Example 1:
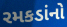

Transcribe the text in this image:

રમકડાંનો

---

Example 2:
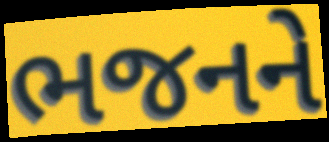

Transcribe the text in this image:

ભજનને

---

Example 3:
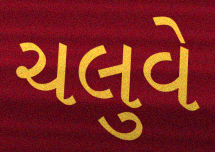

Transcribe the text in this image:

ચલુવે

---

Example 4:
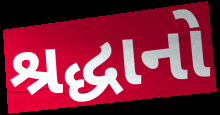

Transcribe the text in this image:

શ્રદ્ધાનો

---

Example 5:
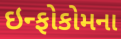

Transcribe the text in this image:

ઇન્ફોકોમના